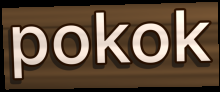
pokok